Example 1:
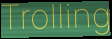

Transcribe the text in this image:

Trolling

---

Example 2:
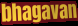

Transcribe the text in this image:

bhagavan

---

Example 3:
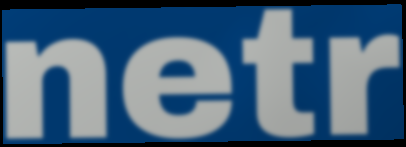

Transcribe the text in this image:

netr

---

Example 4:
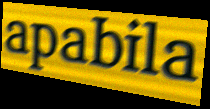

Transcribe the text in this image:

apabila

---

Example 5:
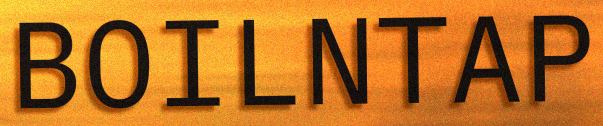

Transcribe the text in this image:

BOILNTAP